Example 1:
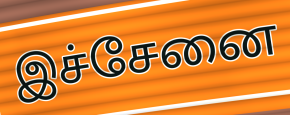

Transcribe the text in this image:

இச்சேனை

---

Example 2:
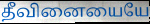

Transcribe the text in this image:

தீவினையையே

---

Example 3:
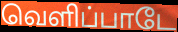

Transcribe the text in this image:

வெளிப்பாடே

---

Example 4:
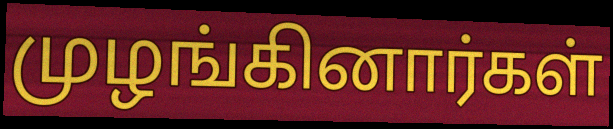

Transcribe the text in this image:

முழங்கினார்கள்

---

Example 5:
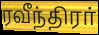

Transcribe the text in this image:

ரவீந்திரர்